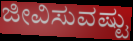
ಜೀವಿಸುವಷ್ಟು